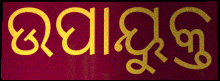
ଉପାୟୁକ୍ତ